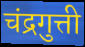
चंद्रगुत्ती